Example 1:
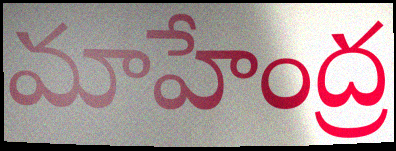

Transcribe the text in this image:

మాహేంద్ర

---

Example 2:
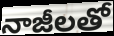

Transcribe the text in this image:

నాజీలతో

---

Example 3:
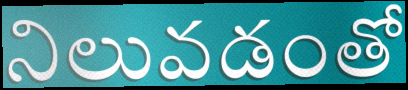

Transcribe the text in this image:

నిలువడంతో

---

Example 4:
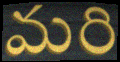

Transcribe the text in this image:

మరి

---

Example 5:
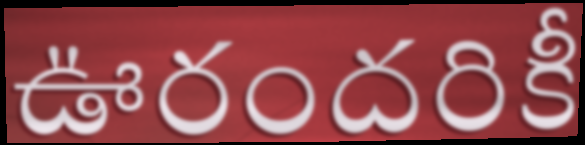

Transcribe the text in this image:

ఊరందరికీ